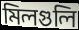
মিলগুলি